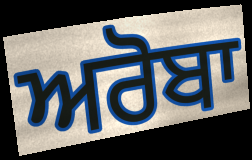
ਅਰੋਬਾ